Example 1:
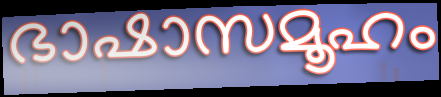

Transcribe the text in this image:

ഭാഷാസമൂഹം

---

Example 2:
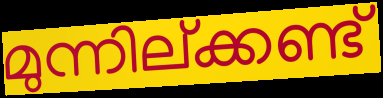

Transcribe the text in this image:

മുന്നില്ക്കണ്ട്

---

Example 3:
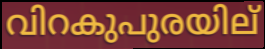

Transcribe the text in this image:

വിറകുപുരയില്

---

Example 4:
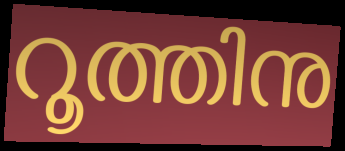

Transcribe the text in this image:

റൂത്തിനു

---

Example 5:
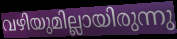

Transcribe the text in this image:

വഴിയുമില്ലായിരുന്നു